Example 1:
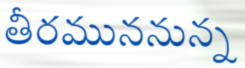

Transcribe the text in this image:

తీరముననున్న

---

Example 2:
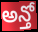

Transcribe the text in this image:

అన్తో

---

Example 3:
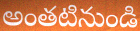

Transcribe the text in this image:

అంతటినుండి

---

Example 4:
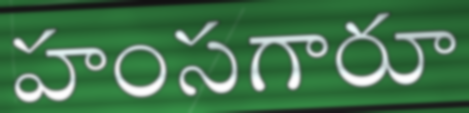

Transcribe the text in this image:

హంసగారూ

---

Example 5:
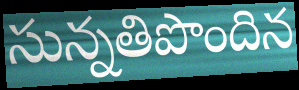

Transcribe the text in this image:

సున్నతిపొందిన